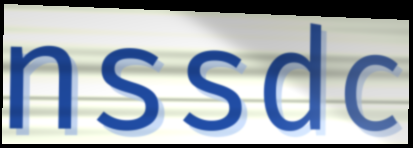
nssdc